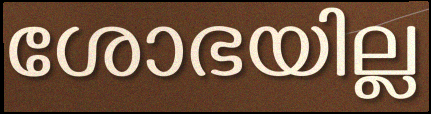
ശോഭയില്ല